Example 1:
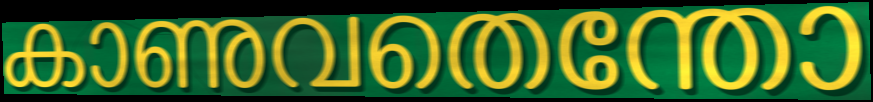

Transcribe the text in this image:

കാണുവതെന്തോ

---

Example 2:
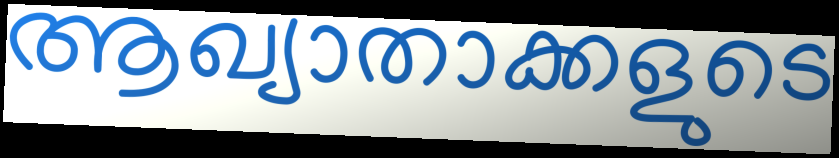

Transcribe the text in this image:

ആഖ്യാതാക്കളുടെ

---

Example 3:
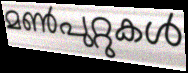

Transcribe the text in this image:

മൺപുറ്റുകൾ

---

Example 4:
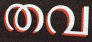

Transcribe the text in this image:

തവ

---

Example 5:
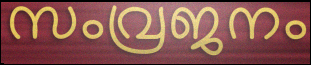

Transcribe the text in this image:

സംവ്രജനം